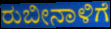
ರುಬೀನಾಳಿಗೆ